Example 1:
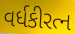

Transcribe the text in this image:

વર્ધકીરત્ન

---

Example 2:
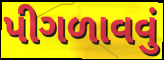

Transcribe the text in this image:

પીગળાવવું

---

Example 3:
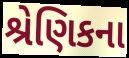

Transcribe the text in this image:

શ્રેણિકના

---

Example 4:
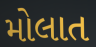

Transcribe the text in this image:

મોલાત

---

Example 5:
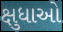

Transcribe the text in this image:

ક્ષુધાઓ